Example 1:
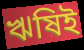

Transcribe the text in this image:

ঋষিই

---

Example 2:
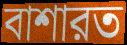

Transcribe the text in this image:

বাশারত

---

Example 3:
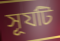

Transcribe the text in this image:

সূর্যটি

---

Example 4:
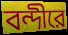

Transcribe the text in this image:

বন্দীরে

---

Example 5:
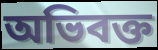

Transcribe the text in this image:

অভিবক্ত